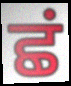
ਛਂ